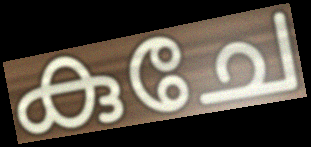
കുചേ